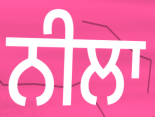
ਨੀਲਾ